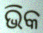
ଭିକ